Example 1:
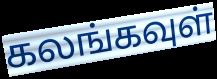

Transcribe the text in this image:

கலங்கவுள்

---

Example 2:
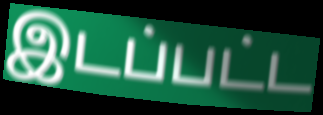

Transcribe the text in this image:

இடப்பட்ட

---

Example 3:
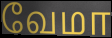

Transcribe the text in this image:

வேமா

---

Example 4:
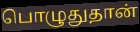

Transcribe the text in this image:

பொழுதுதான்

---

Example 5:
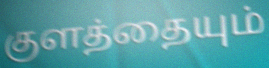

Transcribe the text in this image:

குளத்தையும்